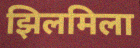
झिलमिला